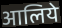
आलिये